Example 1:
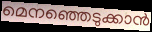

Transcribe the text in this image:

മെനഞ്ഞെടുക്കാൻ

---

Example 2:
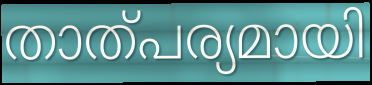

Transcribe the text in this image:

താത്പര്യമായി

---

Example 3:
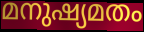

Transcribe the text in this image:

മനുഷ്യമതം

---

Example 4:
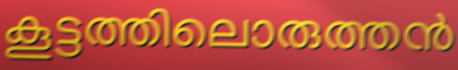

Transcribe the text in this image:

കൂട്ടത്തിലൊരുത്തൻ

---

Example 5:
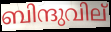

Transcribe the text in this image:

ബിന്ദുവില്